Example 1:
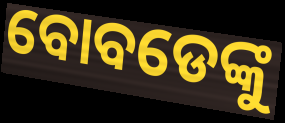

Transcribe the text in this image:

ବୋବଡେଙ୍କୁ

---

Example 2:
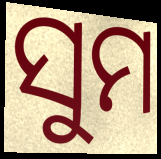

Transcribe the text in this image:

ସୁମ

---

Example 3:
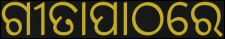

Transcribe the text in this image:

ଗୀତାପାଠରେ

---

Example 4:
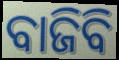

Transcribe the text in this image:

ବାଜିବି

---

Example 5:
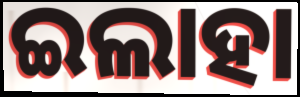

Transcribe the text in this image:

ଇଲାହା